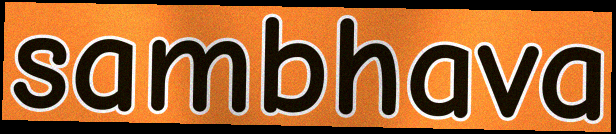
sambhava